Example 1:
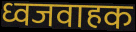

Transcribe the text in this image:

ध्वजवाहक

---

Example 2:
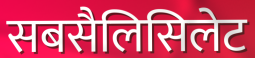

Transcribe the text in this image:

सबसैलिसिलेट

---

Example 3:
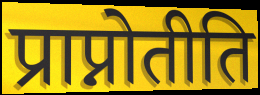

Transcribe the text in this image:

प्राप्नोतीति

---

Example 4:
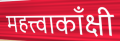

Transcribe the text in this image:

महत्त्वाकाँक्षी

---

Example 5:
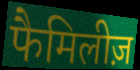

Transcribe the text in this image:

फैमिलीज़